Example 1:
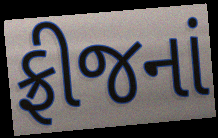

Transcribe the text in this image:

ફ્રીજનાં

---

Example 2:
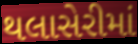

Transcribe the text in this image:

થલાસેરીમાં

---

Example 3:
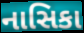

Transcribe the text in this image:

નાસિકા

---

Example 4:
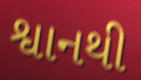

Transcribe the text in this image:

શ્વાનથી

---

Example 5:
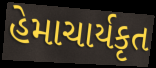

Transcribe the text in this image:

હેમાચાર્યકૃત